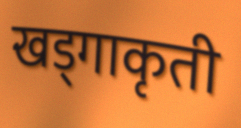
खड्गाकृती